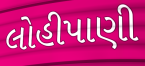
લોહીપાણી